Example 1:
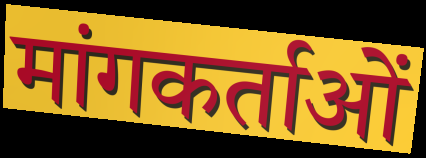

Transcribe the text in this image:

मांगकर्ताओं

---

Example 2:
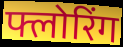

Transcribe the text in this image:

फ्लोरिंग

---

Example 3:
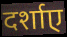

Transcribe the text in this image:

दर्शाए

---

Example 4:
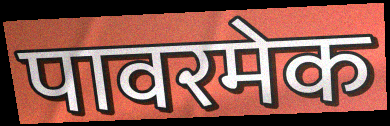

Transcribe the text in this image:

पावरमेक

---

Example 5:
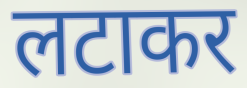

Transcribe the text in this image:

लटाकर